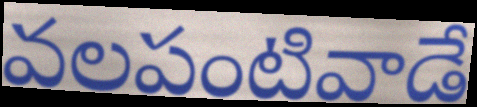
వలపంటివాడే